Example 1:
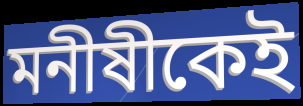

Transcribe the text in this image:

মনীষীকেই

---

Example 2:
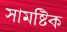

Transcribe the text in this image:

সামষ্টিক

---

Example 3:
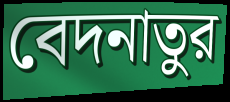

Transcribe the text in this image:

বেদনাতুর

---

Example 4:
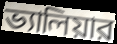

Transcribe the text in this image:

ভ্যালিয়ার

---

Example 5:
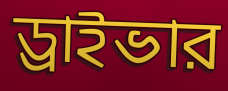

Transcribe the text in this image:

ড্রাইভার